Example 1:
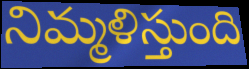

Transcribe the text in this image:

నిమ్మళిస్తుంది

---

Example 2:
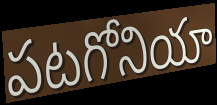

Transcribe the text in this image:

పటగోనియా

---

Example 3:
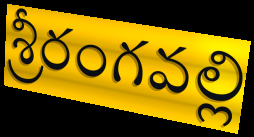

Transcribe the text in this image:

శ్రీరంగవల్లి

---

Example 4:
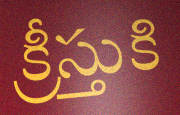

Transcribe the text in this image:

క్రీస్తుకి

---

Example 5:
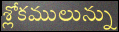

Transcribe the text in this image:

శ్లోకములున్ను